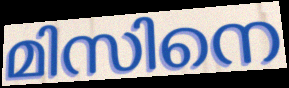
മിസിനെ